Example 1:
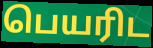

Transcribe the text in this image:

பெயரிட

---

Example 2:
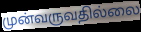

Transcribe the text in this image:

முன்வருவதில்லை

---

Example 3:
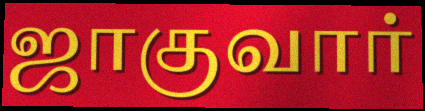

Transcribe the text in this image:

ஜாகுவார்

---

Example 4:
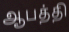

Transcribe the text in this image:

ஆபத்தி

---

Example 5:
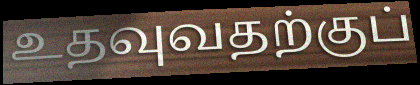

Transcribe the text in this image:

உதவுவதற்குப்